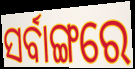
ସର୍ବାଙ୍ଗରେ